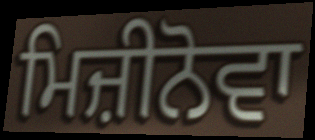
ਮਿਜ਼ੀਨੋਵਾ